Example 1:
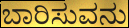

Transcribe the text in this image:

ಬಾರಿಸುವನು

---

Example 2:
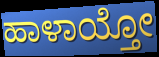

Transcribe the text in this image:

ಹಾಳಾಯ್ತೋ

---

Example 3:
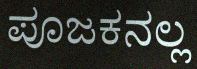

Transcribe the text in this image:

ಪೂಜಕನಲ್ಲ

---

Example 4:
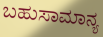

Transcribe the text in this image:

ಬಹುಸಾಮಾನ್ಯ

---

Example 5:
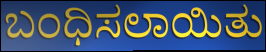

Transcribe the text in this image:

ಬಂಧಿಸಲಾಯಿತು